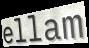
ellam